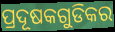
ପ୍ରଦୂଷକଗୁଡିକର